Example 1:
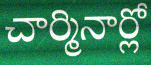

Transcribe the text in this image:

చార్మినార్లో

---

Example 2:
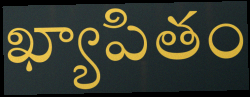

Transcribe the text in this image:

ఖ్యాపితం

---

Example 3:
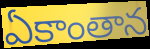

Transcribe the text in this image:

ఏకాంతాన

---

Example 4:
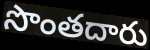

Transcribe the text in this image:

సొంతదారు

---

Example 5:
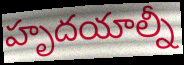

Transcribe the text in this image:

హృదయాల్నీ